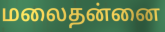
மலைதன்னை